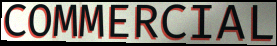
COMMERCIAL